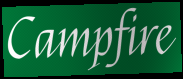
Campfire